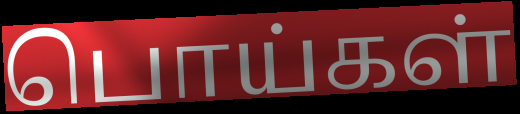
பொய்கள்